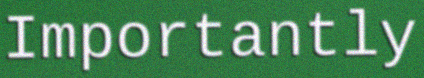
Importantly